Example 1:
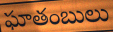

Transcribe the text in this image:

ఘాతంబులు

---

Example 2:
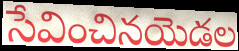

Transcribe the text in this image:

సేవించినయెడల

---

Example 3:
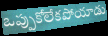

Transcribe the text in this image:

ఒప్పుకోలేకపోయాడు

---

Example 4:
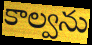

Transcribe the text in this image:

కాల్వను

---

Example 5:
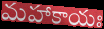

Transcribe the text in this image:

మహాకాయః